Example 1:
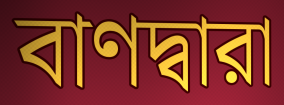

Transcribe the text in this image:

বাণদ্বারা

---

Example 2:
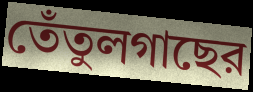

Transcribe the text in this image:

তেঁতুলগাছের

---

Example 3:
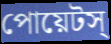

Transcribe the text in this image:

পোয়েটস্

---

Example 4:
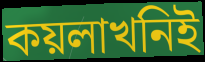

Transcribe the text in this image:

কয়লাখনিই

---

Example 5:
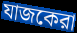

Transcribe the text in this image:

যাজকেরা